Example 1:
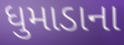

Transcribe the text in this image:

ધુમાડાના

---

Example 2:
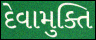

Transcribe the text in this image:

દેવામુક્તિ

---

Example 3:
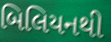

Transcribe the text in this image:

બિલિયનથી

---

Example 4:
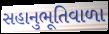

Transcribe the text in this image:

સહાનુભૂતિવાળા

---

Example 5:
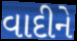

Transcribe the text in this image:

વાદીને